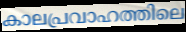
കാലപ്രവാഹത്തിലെ